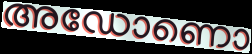
അഡോണൊ